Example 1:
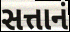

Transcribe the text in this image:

સત્તાનં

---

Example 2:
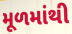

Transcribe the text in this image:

મૂળમાંથી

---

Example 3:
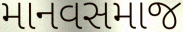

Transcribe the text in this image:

માનવસમાજ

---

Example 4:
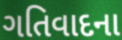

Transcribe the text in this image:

ગતિવાદના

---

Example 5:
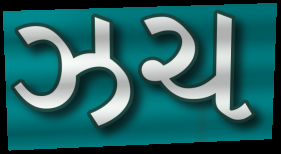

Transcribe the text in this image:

ઝચ